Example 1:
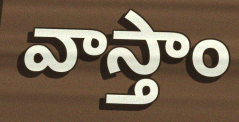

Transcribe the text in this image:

వాస్తాం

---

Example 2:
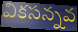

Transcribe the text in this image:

వికసన్నవ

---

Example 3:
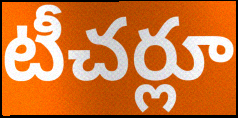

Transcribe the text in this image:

టీచర్లూ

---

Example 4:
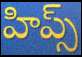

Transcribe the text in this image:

హిప్స్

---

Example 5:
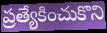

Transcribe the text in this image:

ప్రత్యేకించుకొని